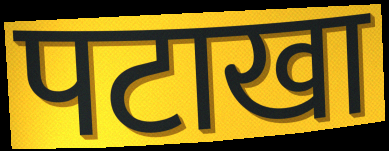
पटाखा